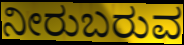
ನೀರುಬರುವ